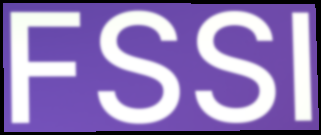
FSSI